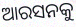
ଆରସନକୁ